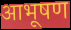
आभूषण